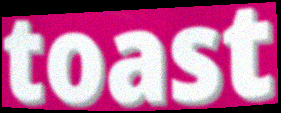
toast